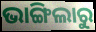
ଭାଙ୍ଗିଲାରୁ